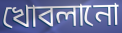
খোবলানো